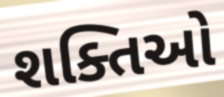
શક્તિઓ